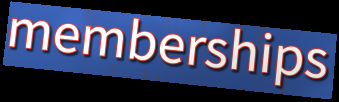
memberships